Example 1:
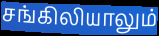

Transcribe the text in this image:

சங்கிலியாலும்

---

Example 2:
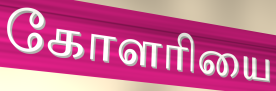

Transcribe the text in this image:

கோளரியை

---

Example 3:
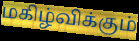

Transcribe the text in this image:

மகிழ்விக்கும்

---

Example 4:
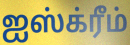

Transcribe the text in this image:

ஐஸ்க்ரீம்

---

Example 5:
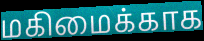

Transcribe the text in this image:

மகிமைக்காக